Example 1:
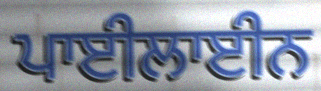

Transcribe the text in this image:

ਪਾਈਲਾਈਨ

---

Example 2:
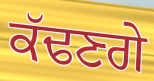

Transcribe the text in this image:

ਕੱਢਣਗੇ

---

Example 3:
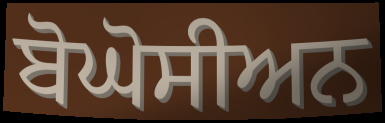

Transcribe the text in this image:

ਬੋਘੋਸੀਅਨ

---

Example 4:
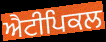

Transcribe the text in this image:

ਐਟੀਪਿਕਲ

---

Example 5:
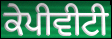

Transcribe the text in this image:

ਕੇਪੀਵੀਟੀ